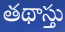
తథాస్తు